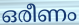
ഒരീണം